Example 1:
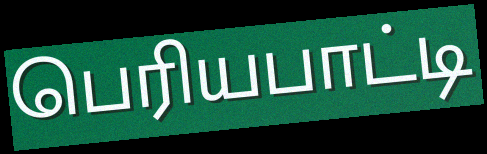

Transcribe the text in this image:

பெரியபாட்டி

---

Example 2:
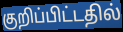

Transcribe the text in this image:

குறிப்பிட்டதில்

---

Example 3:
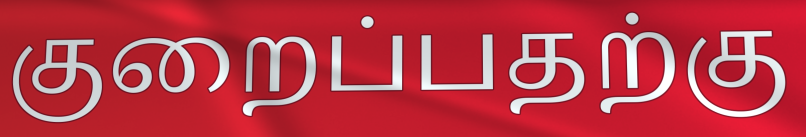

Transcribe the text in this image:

குறைப்பதற்கு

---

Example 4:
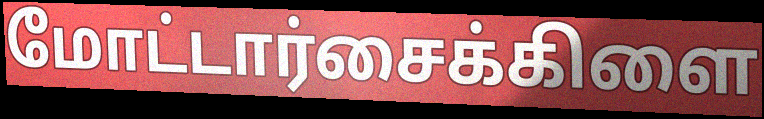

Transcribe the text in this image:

மோட்டார்சைக்கிளை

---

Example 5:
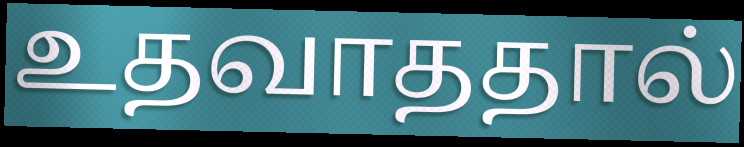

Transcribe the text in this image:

உதவாததால்